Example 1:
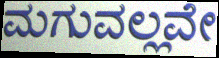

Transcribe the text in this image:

ಮಗುವಲ್ಲವೇ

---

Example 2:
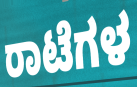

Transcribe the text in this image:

ರಾಟೆಗಳ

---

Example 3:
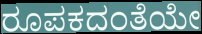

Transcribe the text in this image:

ರೂಪಕದಂತೆಯೇ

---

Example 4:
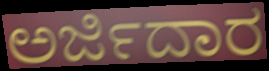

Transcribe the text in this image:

ಅರ್ಜಿದಾರ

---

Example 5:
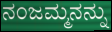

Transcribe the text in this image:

ನಂಜಮ್ಮನನ್ನು